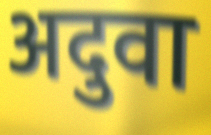
अदुवा